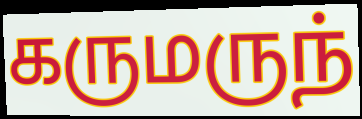
கருமருந்